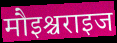
मौइश्चराइज